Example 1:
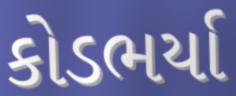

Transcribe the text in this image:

કોડભર્યા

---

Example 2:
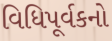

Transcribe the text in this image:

વિધિપૂર્વકનો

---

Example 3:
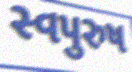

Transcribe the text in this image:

સ્વપુરુષ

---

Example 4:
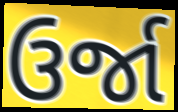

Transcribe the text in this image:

ઉર્જા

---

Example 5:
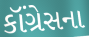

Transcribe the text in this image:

કૉંગ્રેસના